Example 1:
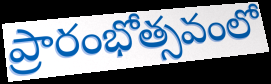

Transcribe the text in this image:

ప్రారంభోత్సవంలో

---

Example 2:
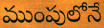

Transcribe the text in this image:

ముంపులోనే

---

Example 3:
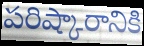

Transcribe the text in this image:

పరిష్కారానికి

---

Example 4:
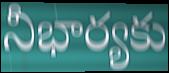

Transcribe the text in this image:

నీభార్యకు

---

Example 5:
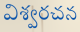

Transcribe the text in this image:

విశ్వరచన